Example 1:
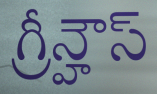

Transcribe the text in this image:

గ్రీన్హౌస్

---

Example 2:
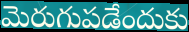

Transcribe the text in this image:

మెరుగుపడేందుకు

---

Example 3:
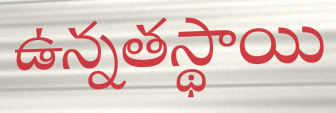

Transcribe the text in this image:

ఉన్నతస్థాయి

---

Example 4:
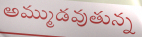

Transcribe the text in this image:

అమ్ముడవుతున్న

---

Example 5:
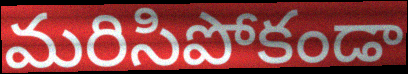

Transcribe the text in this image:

మరిసిపోకండా